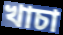
খাচা